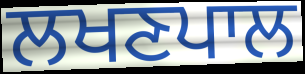
ਲਖਣਪਾਲ